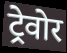
ट्रेवोर